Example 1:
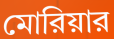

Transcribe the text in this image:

মোরিয়ার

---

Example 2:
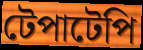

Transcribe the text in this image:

টেপাটেপি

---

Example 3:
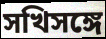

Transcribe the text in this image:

সখিসঙ্গে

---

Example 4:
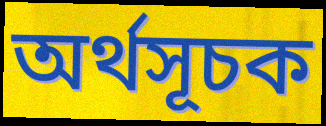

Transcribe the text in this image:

অর্থসূচক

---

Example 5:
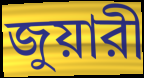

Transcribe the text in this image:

জুয়ারী